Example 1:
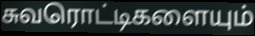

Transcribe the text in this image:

சுவரொட்டிகளையும்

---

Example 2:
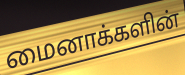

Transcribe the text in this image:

மைனாக்களின்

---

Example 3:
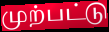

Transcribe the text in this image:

முற்பட்டு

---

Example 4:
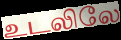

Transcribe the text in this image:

உடலிலே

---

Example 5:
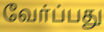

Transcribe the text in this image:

வேர்ப்பது